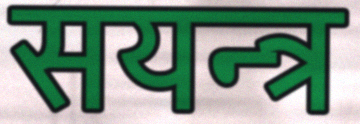
सयन्त्र